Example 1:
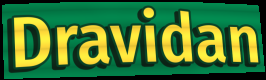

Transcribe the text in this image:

Dravidan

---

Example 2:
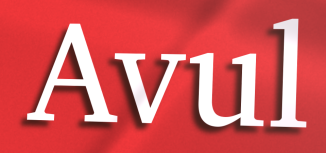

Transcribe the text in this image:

Avul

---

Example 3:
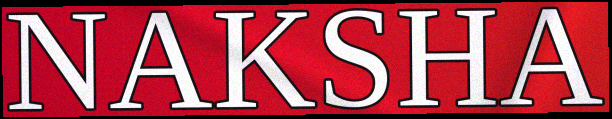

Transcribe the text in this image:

NAKSHA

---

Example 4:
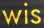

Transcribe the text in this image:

wis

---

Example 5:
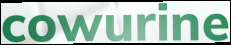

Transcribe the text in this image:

cowurine